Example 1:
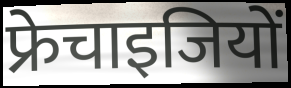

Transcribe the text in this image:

फ्रेचाइजियों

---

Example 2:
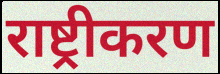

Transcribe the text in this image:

राष्ट्रीकरण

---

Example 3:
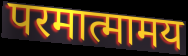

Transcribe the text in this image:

परमात्मामय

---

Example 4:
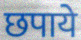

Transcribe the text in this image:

छपाये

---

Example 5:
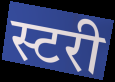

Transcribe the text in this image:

स्टरी